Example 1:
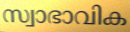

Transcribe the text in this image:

സ്വാഭാവിക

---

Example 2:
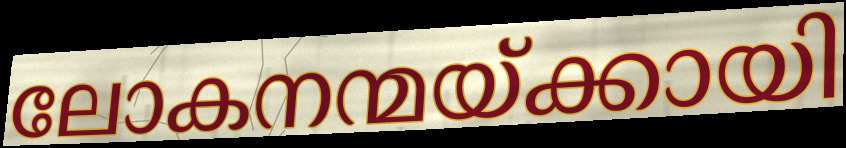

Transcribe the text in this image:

ലോകനന്മയ്ക്കായി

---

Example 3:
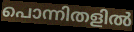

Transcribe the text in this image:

പൊന്നിതളിൽ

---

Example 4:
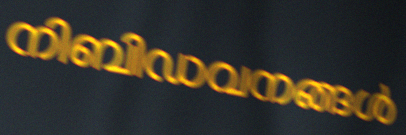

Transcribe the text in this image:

നിബിഡവനങ്ങൾ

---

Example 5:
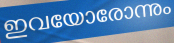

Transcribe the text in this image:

ഇവയോരോന്നും